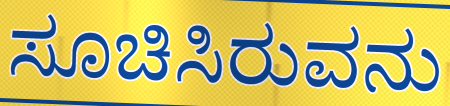
ಸೂಚಿಸಿರುವನು